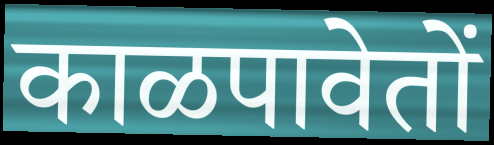
काळपावेतों